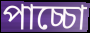
পাচ্চো